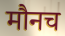
मौनच